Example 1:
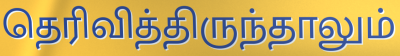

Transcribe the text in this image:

தெரிவித்திருந்தாலும்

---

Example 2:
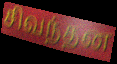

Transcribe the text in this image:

சிவந்தன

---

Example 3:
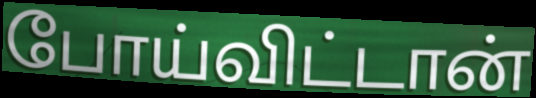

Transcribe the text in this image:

போய்விட்டான்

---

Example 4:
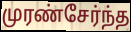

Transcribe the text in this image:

முரண்சேர்ந்த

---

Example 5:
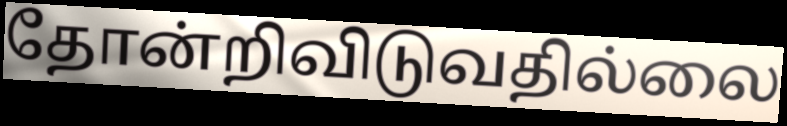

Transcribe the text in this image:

தோன்றிவிடுவதில்லை